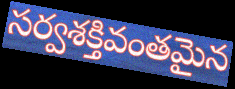
సర్వశక్తివంతమైన